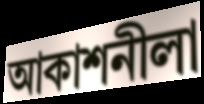
আকাশনীলা